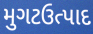
મુગટઉત્પાદ